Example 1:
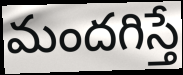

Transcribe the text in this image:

మందగిస్తే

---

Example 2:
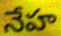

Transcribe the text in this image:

నేహ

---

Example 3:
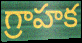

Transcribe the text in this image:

గ్రాహక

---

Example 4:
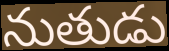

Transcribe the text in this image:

నుతుడు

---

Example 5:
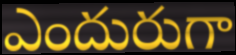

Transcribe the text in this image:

ఎందురుగా